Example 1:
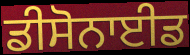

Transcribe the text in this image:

ਡੀਸੋਨਾਈਡ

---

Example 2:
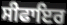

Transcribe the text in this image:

ਸੀਫਾਇਰ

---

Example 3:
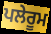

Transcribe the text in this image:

ਪਲੇਰੂਮ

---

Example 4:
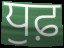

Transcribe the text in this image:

ਧੁਫ਼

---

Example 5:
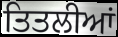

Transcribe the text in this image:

ਤਿਤਲੀਆਂ